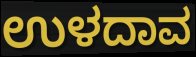
ಉಳದಾವ